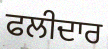
ਫਲੀਦਾਰ